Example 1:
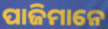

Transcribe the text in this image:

ପାଜିମାନେ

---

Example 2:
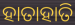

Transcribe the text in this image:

ହାତାହାତି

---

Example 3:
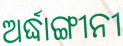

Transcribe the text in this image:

ଅର୍ଦ୍ଧାଙ୍ଗୀନୀ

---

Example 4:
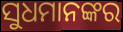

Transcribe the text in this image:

ସୁଧମାନଙ୍କର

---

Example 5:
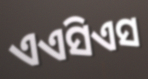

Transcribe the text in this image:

ଏଏସିଏସ